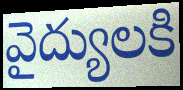
వైద్యులకి